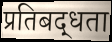
प्रतिबद्धता